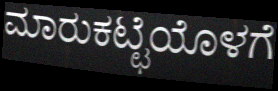
ಮಾರುಕಟ್ಟೆಯೊಳಗೆ